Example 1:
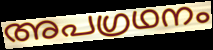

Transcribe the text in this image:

അപഗ്രഥനം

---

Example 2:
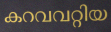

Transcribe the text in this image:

കറവവറ്റിയ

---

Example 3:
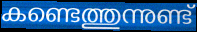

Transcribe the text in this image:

കണ്ടെത്തുന്നുണ്ട്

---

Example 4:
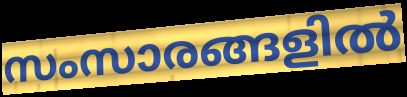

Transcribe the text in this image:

സംസാരങ്ങളിൽ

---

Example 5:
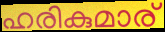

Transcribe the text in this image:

ഹരികുമാര്